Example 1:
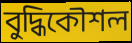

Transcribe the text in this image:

বুদ্ধিকৌশল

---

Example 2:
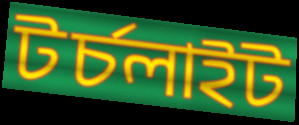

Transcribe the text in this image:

টর্চলাইট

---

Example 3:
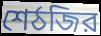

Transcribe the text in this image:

শেঠজির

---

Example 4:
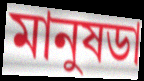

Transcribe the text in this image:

মানুষডা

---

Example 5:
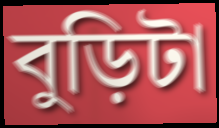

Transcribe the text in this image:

বুড়িটা